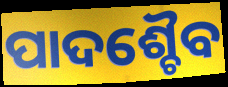
ପାଦଶ୍ଚୈବ